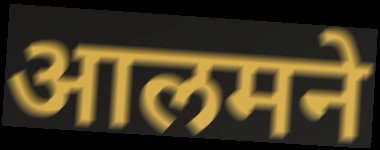
आलमने